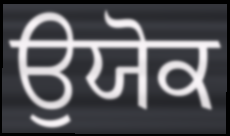
ਉਯੋਕ